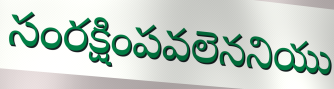
సంరక్షింపవలెననియు